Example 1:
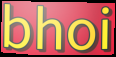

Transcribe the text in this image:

bhoi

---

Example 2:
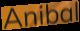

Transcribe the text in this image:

Anibal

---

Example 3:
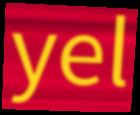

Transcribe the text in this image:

yel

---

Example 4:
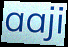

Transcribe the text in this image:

aaji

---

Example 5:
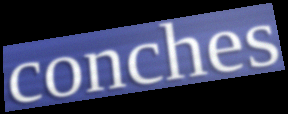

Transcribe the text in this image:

conches